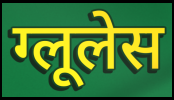
ग्लूलेस